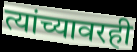
त्यांच्यावरही